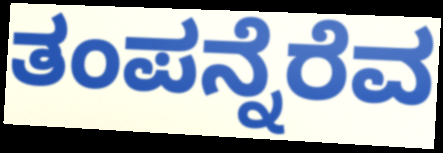
ತಂಪನ್ನೆರೆವ